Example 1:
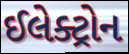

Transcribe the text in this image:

ઈલેક્ટ્રોન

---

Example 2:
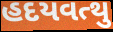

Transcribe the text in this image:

હદયવત્થુ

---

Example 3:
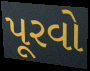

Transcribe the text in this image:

પૂરવો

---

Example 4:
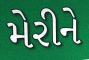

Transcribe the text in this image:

મેરીને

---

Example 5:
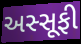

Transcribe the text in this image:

અસ્સૂફી